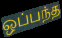
ஒப்பந்த